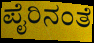
ಪೈರಿನಂತೆ